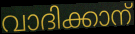
വാദിക്കാന്